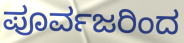
ಪೂರ್ವಜರಿಂದ